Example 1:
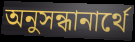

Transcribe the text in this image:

অনুসন্ধানার্থে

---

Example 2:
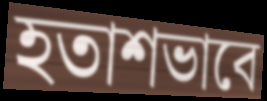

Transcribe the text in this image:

হতাশভাবে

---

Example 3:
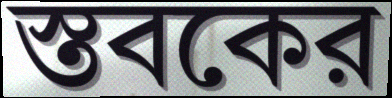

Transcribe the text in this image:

স্তবকের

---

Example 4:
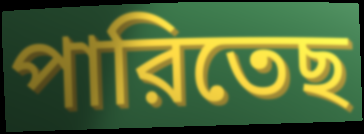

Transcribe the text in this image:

পারিতেছ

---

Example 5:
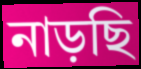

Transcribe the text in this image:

নাড়ছি